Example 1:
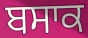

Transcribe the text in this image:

ਬਸਾਕ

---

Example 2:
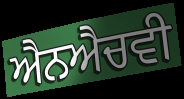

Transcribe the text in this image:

ਐਨਐਚਵੀ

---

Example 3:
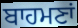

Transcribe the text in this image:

ਬਾਹਮਣਾਂ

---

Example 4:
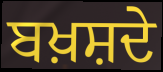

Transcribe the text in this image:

ਬਖ਼ਸ਼ਦੇ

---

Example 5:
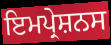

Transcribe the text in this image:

ਇਮਪ੍ਰੇਸ਼ਨਸ